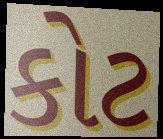
કોટ